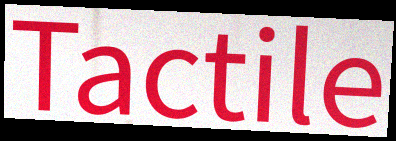
Tactile